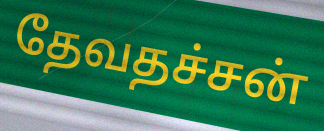
தேவதச்சன்